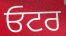
ਓਟਰ